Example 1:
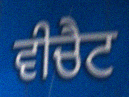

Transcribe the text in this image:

ਵੀਚੈਟ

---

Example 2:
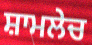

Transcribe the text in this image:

ਸ਼ਾਮਲੇਚ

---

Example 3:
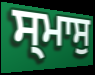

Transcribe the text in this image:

ਸ੍ਮਾਸੁ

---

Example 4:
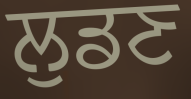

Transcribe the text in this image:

ਲੁਡਣ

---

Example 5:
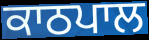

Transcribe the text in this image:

ਕਾਠਪਾਲ